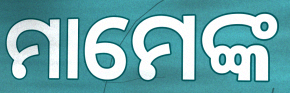
ମାମେଙ୍କ